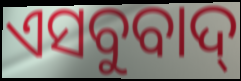
ଏସବୁବାଦ୍